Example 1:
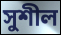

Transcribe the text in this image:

সুশীল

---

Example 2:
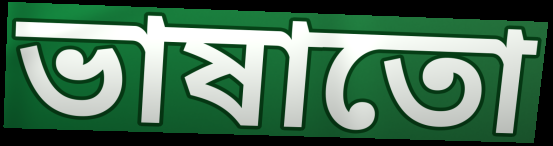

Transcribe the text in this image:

ভাষাতো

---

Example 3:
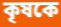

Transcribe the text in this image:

কৃষকে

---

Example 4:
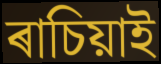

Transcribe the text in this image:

ৰাচিয়াই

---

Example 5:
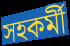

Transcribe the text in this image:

সহকৰ্মী